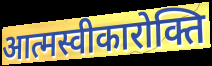
आत्मस्वीकारोक्ति